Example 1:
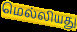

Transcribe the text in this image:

மெல்லியது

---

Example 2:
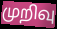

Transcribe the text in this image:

முறிவு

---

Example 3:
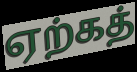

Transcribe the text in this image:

ஏற்கத்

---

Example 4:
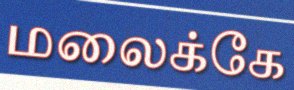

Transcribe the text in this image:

மலைக்கே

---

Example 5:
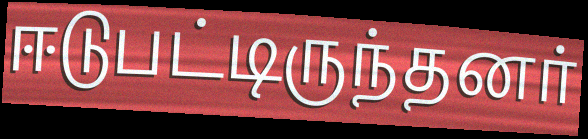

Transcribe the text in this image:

ஈடுபட்டிருந்தனர்